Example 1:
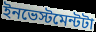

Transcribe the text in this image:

ইনভেস্টমেন্টটা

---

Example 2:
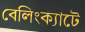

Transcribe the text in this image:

বেলিংক্যাটে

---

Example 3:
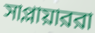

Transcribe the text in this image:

সাপ্লায়াররা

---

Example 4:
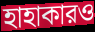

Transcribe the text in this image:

হাহাকারও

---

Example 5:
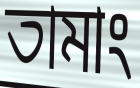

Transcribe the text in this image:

তামাং